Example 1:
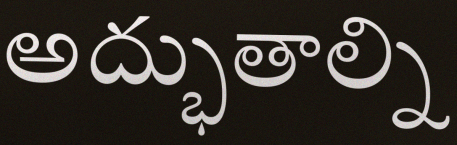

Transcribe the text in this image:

అద్భుతాల్ని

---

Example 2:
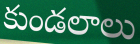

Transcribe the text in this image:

కుండలాలు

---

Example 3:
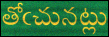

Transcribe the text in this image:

తోఁచునట్లు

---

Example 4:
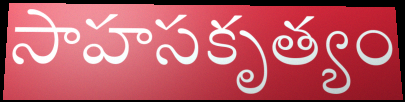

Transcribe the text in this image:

సాహసకృత్యం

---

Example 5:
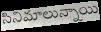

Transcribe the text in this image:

సినిమాలున్నాయి